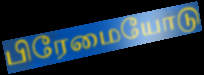
பிரேமையோடு